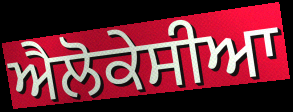
ਐਲੋਕੇਸੀਆ